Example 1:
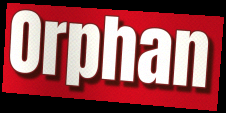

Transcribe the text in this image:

Orphan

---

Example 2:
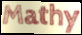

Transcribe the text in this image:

Mathy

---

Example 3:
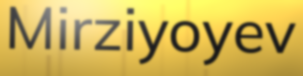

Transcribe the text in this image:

Mirziyoyev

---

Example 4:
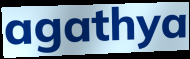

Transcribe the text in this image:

agathya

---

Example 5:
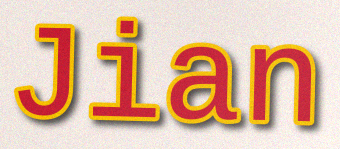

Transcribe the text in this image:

Jian